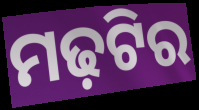
ମଢ଼ଟିର